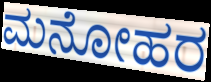
ಮನೋಹರ